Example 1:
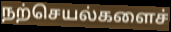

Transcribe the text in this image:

நற்செயல்களைச்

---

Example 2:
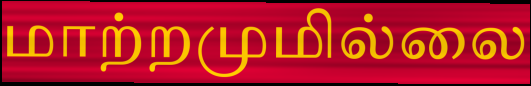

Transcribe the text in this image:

மாற்றமுமில்லை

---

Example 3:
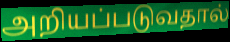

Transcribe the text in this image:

அறியப்படுவதால்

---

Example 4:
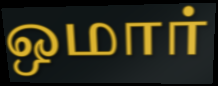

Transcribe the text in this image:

ஒமார்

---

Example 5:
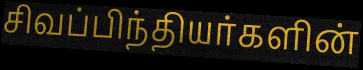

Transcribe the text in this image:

சிவப்பிந்தியர்களின்